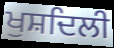
ਖੁਸ਼ਦਿਲੀ